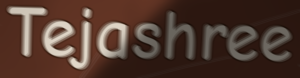
Tejashree